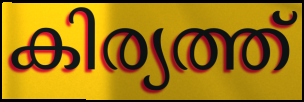
കിര്യത്ത്